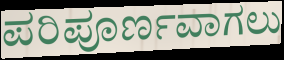
ಪರಿಪೂರ್ಣವಾಗಲು